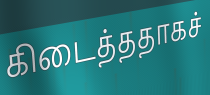
கிடைத்ததாகச்